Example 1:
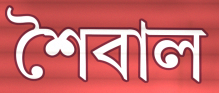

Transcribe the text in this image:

শৈবাল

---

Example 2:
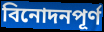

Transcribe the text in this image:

বিনোদনপূর্ণ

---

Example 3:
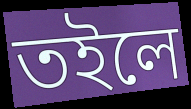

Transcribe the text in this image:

তইলে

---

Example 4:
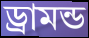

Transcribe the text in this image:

ড্রামন্ড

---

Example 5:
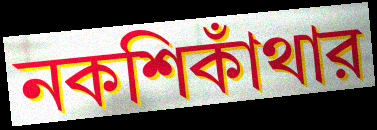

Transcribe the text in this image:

নকশিকাঁথার